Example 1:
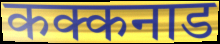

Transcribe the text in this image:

कक्कनाड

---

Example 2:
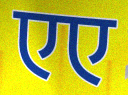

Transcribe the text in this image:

एए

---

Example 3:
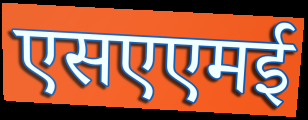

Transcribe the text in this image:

एसएएमई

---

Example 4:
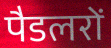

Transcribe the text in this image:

पैडलरों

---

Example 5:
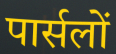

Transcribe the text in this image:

पार्सलों